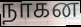
நாகன